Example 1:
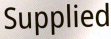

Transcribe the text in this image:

Supplied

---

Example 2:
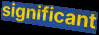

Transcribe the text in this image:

significant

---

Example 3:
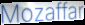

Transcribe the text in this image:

Mozaffar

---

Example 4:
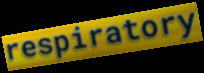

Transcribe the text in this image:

respiratory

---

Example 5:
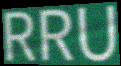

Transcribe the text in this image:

RRU